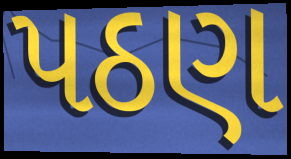
પઠણ